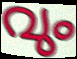
വും